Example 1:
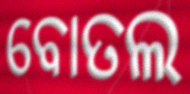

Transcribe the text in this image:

ବୋତଲ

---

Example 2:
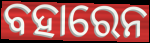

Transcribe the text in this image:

ବହାରେନ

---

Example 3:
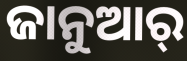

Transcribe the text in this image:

ଜାନୁଆର୍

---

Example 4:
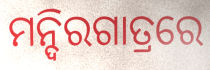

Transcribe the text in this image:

ମନ୍ଦିରଗାତ୍ରରେ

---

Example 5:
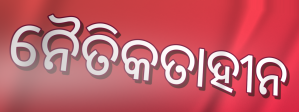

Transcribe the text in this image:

ନୈତିକତାହୀନ